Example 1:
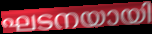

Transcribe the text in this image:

ഘടനയായി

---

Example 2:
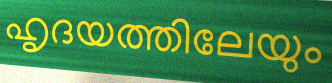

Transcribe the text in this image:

ഹൃദയത്തിലേയും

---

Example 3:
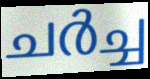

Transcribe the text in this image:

ചർച്ച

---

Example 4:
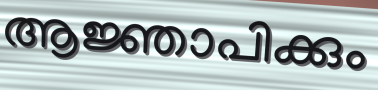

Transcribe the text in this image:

ആജ്ഞാപിക്കും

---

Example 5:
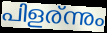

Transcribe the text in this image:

പിളര്ന്നും